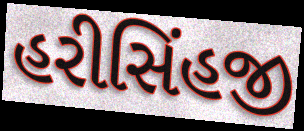
હરીસિંહજી